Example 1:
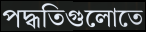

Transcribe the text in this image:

পদ্ধতিগুলোতে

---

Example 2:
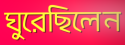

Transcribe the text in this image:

ঘুরেছিলেন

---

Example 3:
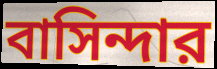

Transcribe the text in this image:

বাসিন্দার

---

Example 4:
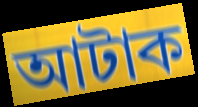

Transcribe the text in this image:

আটাক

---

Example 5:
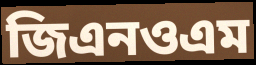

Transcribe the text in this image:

জিএনওএম